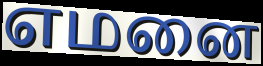
எமனை